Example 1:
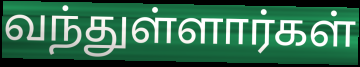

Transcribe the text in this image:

வந்துள்ளார்கள்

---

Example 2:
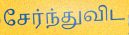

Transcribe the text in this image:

சேர்ந்துவிட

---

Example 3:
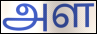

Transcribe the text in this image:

அள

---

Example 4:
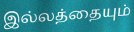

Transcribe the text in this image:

இல்லத்தையும்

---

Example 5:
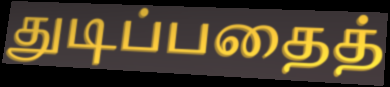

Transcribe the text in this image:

துடிப்பதைத்